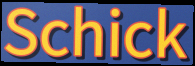
Schick